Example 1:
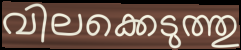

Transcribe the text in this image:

വിലക്കെടുത്തു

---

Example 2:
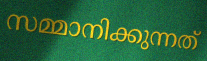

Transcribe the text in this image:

സമ്മാനിക്കുന്നത്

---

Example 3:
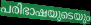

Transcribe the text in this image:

പരിഭാഷയുടെയും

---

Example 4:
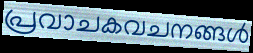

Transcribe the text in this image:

പ്രവാചകവചനങ്ങൾ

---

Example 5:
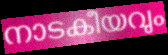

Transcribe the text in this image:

നാടകീയവും